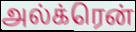
அல்க்ரென்